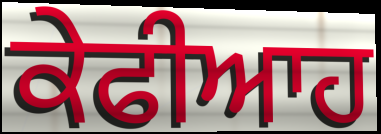
ਕੇਫੀਆਹ